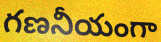
గణనీయంగా